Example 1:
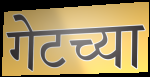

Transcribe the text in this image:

गेटच्या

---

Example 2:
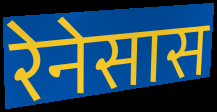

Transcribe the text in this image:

रेनेसास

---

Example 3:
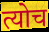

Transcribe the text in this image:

त्योच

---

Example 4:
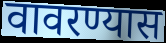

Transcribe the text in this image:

वावरण्यास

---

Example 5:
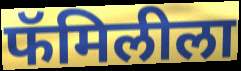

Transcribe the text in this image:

फॅमिलीला